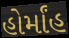
હોર્માંહ